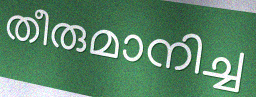
തീരുമാനിച്ച